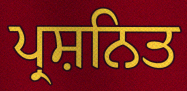
ਪ੍ਰਸ਼ਨਿਤ